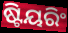
ଷ୍ଟିୟରିଂ